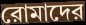
রোমাদের